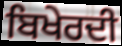
ਬਿਖੇਰਦੀ